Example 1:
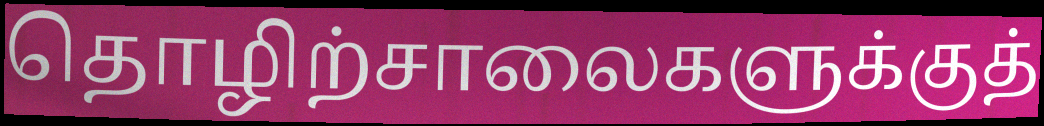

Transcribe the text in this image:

தொழிற்சாலைகளுக்குத்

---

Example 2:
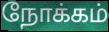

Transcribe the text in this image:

நோக்கம்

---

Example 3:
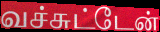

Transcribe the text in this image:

வச்சுட்டேன்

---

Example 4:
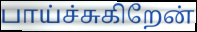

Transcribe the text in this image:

பாய்ச்சுகிறேன்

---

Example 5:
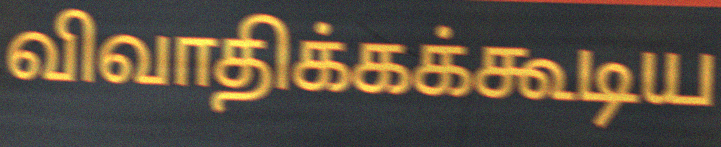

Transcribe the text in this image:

விவாதிக்கக்கூடிய